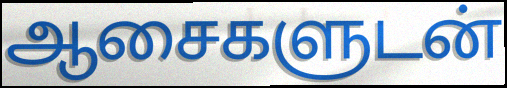
ஆசைகளுடன்